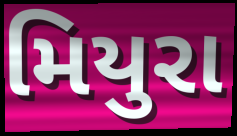
મિયુરા